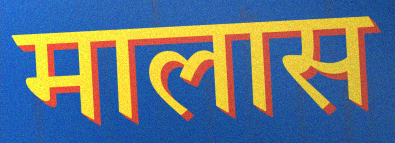
मालास